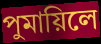
পুমায়িলে